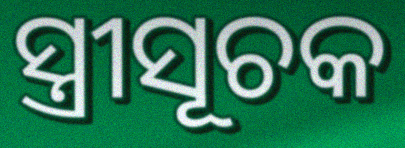
ସ୍ତ୍ରୀସୂଚକ